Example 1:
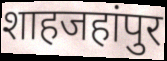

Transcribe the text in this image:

शाहजहांपुर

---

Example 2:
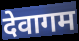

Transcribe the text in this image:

देवागम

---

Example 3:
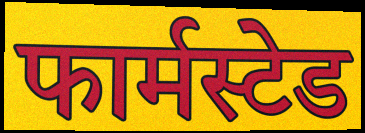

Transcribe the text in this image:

फार्मस्टेड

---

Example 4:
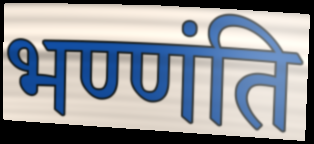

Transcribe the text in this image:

भण्णंति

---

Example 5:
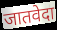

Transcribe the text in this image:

जातवेदा